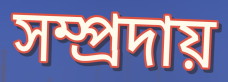
সম্প্ৰদায়